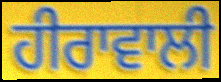
ਹੀਰਾਵਾਲੀ